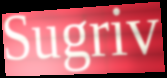
Sugriv